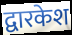
द्वारकेश